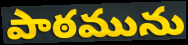
పాఠమును